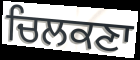
ਚਿਲਕਣਾ